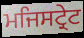
ਮਜਿਸਟ੍ਰੇਟ